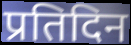
प्रतिदिन